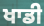
ਖਾਡੀ